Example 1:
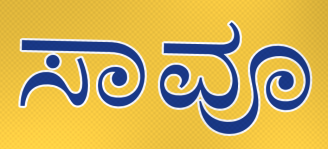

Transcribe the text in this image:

ಸಾವೂ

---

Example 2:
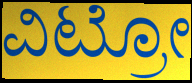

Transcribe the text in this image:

ವಿಟ್ರೋ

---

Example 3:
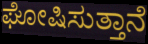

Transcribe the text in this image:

ಘೋಷಿಸುತ್ತಾನೆ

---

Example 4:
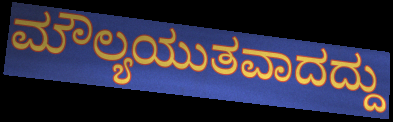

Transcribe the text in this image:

ಮೌಲ್ಯಯುತವಾದದ್ದು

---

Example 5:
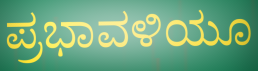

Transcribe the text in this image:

ಪ್ರಭಾವಳಿಯೂ